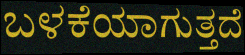
ಬಳಕೆಯಾಗುತ್ತದೆ